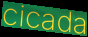
cicada